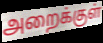
அறைக்குள்